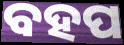
ବହପ